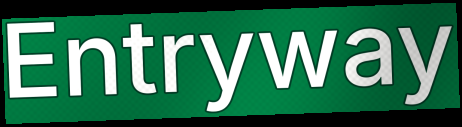
Entryway